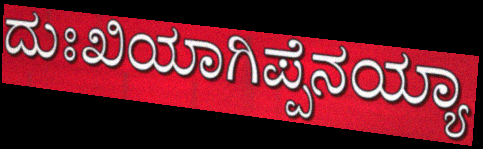
ದುಃಖಿಯಾಗಿಪ್ಪೆನಯ್ಯಾ